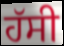
ਹੱਸੀ